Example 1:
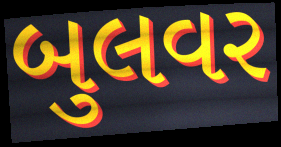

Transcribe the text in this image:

બુલવર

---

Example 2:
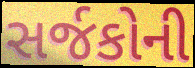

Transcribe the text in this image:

સર્જકોની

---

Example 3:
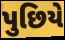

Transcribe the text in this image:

પુછિયે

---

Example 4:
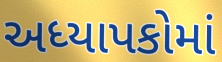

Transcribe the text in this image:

અધ્યાપકોમાં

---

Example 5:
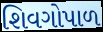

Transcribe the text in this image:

શિવગોપાળ